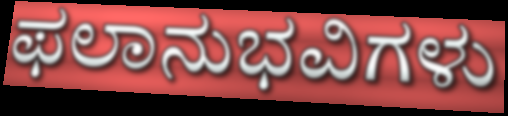
ಫಲಾನುಭವಿಗಳು